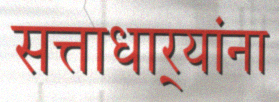
सत्ताधार्यांना